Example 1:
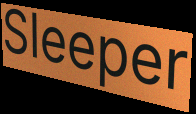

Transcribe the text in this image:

Sleeper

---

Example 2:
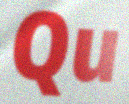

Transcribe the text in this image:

Qu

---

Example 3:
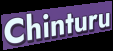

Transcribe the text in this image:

Chinturu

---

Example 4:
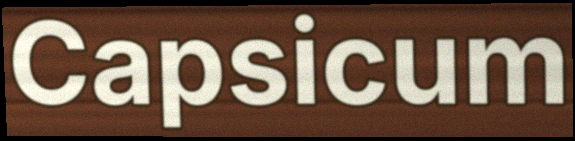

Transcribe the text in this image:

Capsicum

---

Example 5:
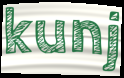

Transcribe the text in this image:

kunj